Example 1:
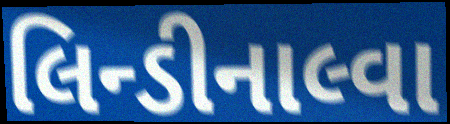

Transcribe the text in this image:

લિન્ડીનાલ્વા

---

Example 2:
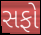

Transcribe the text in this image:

સફો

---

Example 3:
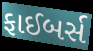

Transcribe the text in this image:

ફાઈબર્સ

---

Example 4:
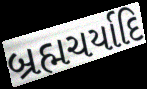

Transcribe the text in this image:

બ્રહ્મચર્યાદિ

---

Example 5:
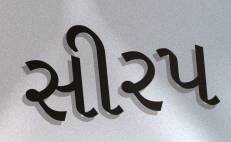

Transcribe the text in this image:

સીરપ